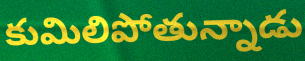
కుమిలిపోతున్నాడు